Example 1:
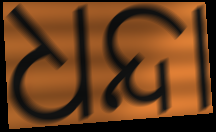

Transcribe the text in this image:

ଧନ୍ଦା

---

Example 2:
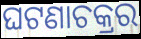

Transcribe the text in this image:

ଘଟଣାଚକ୍ରର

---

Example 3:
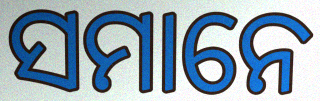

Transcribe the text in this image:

ସମାନେ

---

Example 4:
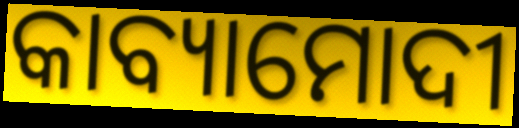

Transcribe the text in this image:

କାବ୍ୟାମୋଦୀ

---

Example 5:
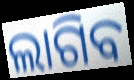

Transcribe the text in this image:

ଲାଗିବ